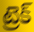
ట్రెక్